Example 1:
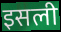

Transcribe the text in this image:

इसली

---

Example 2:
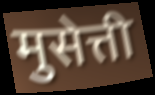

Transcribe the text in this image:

मुसेत्ती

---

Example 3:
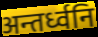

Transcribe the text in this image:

अन्तर्ध्वनि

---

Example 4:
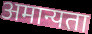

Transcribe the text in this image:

अमान्यता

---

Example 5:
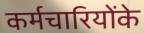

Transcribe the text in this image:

कर्मचारियोंके